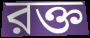
রক্ত